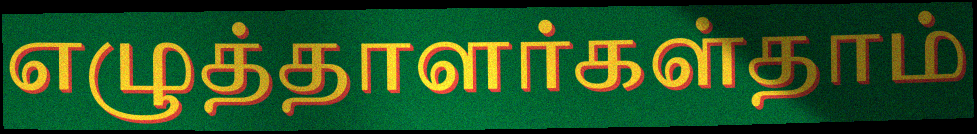
எழுத்தாளர்கள்தாம்